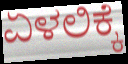
ಏಳಲಿಕ್ಕೆ